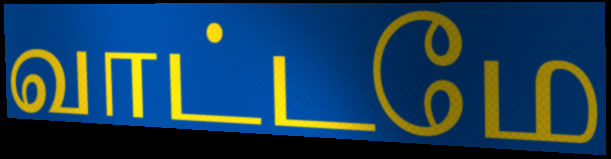
வாட்டமே